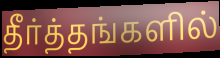
தீர்த்தங்களில்